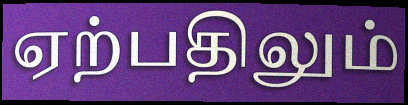
ஏற்பதிலும்